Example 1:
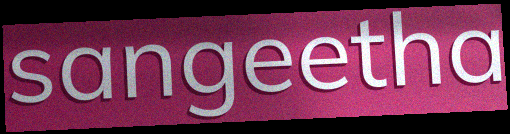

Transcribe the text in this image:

sangeetha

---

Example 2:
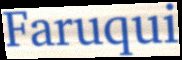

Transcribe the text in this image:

Faruqui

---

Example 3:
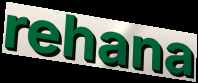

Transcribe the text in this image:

rehana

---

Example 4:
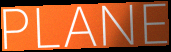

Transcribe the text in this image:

PLANE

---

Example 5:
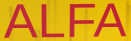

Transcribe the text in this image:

ALFA